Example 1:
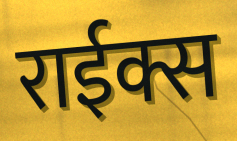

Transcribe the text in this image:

राईक्स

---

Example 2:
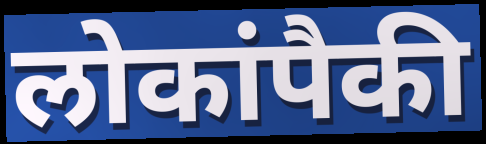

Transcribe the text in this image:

लोकांपैकी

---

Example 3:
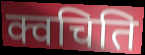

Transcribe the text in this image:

क्वचिति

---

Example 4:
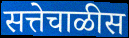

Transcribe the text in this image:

सत्तेचाळीस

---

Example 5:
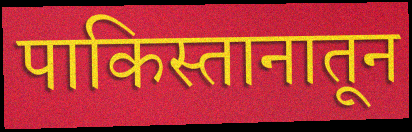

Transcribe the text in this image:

पाकिस्तानातून